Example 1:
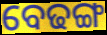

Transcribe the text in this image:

ବେଢଙ୍ଗ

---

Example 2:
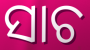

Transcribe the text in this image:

ସାଚ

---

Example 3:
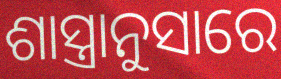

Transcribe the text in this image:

ଶାସ୍ତ୍ରାନୁସାରେ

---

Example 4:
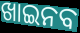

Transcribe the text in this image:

ଖାଇନବ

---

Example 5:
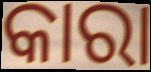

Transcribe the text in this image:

କାରା